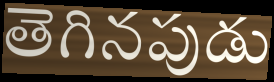
తెగినపుడు